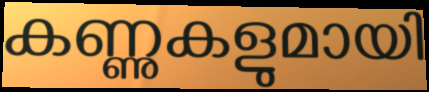
കണ്ണുകളുമായി